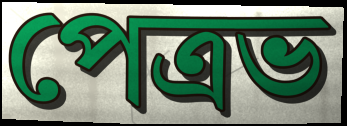
পেত্রভ